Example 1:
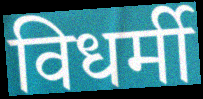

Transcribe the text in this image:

विधर्मी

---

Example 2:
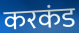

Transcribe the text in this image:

करकंड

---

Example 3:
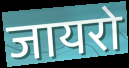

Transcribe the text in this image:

जायरो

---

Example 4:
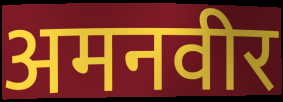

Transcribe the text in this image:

अमनवीर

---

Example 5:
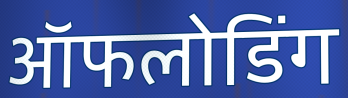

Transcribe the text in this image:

ऑफलोडिंग